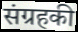
संग्रहकी